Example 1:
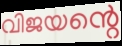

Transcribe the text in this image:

വിജയന്റെ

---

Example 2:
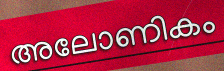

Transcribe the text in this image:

അലോണികം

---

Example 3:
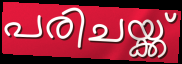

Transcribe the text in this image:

പരിചയ്ക്ക്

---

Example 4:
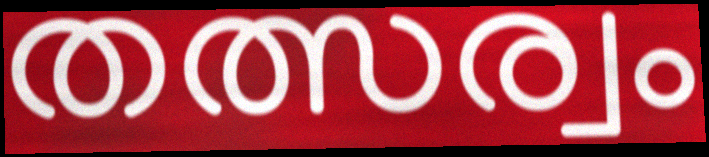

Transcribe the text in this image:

തത്സര്വം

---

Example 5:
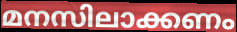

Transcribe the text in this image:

മനസിലാക്കണം